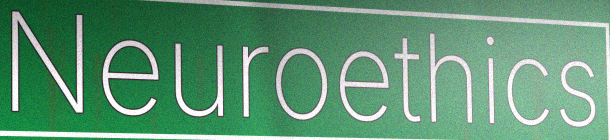
Neuroethics